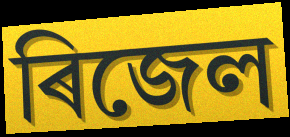
ৰিজেল